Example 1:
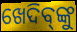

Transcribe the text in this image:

ଖେଦିବ୍‌ଙ୍କୁ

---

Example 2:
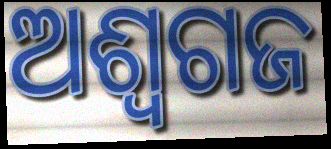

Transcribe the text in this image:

ଅଶ୍ୱଗଜ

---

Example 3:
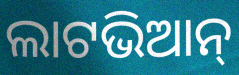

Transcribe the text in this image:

ଲାଟଭିଆନ୍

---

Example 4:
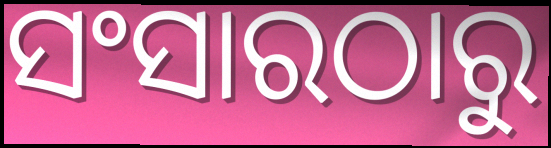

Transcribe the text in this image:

ସଂସାରଠାରୁ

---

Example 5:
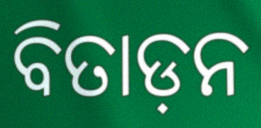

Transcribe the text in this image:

ବିତାଡ଼ନ